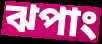
ঝপাং